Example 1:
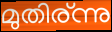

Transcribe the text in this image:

മുതിര്ന്നു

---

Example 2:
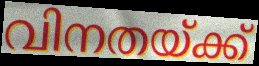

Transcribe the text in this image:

വിനതയ്ക്ക്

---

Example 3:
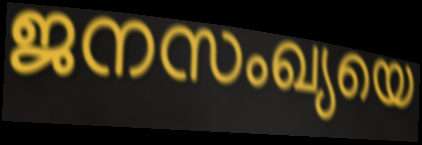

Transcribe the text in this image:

ജനസംഖ്യയെ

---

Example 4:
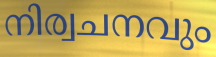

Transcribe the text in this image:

നിര്വചനവും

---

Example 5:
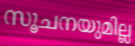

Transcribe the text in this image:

സൂചനയുമില്ല